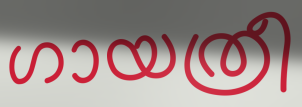
ഗായത്രീ